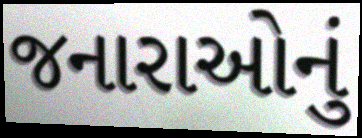
જનારાઓનું